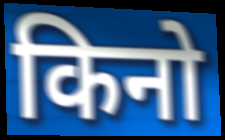
किनो